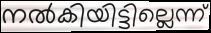
നൽകിയിട്ടില്ലെന്ന്